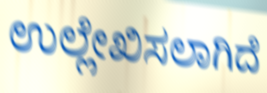
ಉಲ್ಲೇಖಿಸಲಾಗಿದೆ